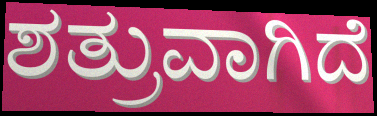
ಶತ್ರುವಾಗಿದೆ